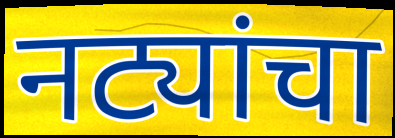
नट्यांचा